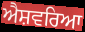
ਐਸ਼ਵਰਿਆ